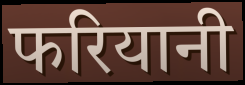
फरियानी